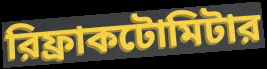
রিফ্রাকটোমিটার